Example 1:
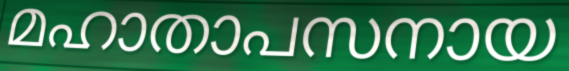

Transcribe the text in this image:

മഹാതാപസനായ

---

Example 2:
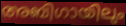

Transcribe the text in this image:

അബിഗായിലും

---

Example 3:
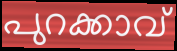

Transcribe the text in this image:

പുറക്കാവ്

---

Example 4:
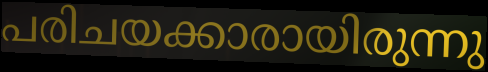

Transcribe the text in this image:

പരിചയക്കാരായിരുന്നു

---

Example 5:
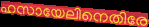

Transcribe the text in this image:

ഹസായേലിനെതിരേ